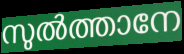
സുൽത്താനേ